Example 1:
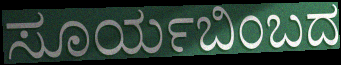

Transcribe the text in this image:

ಸೂರ್ಯಬಿಂಬದ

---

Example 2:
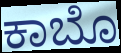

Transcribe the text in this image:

ಕಾಬೊ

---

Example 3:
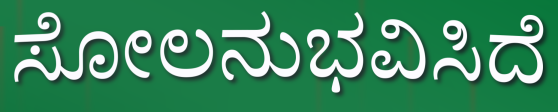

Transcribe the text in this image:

ಸೋಲನುಭವಿಸಿದೆ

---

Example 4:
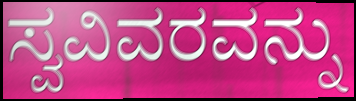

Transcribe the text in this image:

ಸ್ವವಿವರವನ್ನು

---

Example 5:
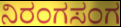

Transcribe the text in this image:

ನಿರಂಗಸಂಗ